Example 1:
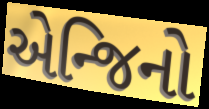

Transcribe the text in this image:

એન્જિનો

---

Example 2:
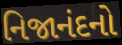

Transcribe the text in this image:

નિજાનંદનો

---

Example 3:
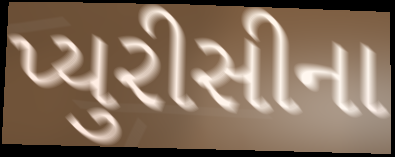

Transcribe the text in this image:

પ્યુરીસીના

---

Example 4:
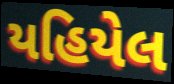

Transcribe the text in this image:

યહિયેલ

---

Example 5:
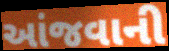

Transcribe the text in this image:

આંજવાની